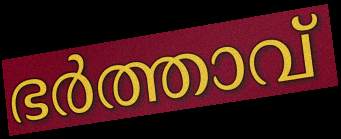
ഭർത്താവ്